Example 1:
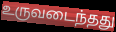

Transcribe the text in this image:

உருவடைந்தது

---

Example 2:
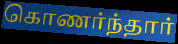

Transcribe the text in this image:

கொணர்ந்தார்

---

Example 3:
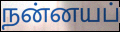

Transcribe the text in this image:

நன்னயப்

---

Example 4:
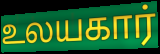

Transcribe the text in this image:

உலயகார்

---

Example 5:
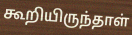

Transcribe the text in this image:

கூறியிருந்தாள்